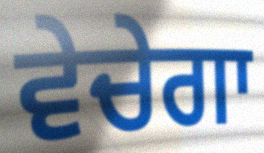
ਵੇਚੇਗਾ